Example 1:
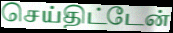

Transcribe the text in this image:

செய்திட்டேன்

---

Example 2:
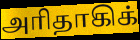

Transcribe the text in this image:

அரிதாகிக்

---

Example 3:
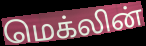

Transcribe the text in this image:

மெக்லின்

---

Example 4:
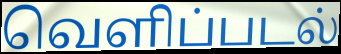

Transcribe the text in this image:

வெளிப்படல்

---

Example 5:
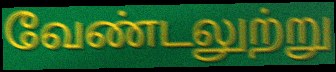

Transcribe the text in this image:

வேண்டலுற்று